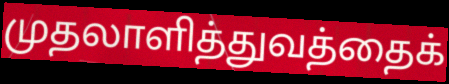
முதலாளித்துவத்தைக்